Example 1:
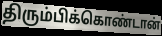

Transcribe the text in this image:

திரும்பிக்கொண்டான்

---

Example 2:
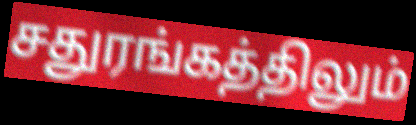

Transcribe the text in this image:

சதுரங்கத்திலும்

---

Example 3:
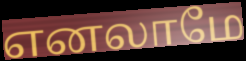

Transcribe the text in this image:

எனலாமே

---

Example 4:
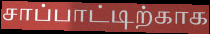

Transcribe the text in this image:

சாப்பாட்டிற்காக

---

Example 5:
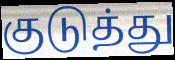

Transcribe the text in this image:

குடுத்து